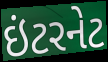
ઇંટરનેટ